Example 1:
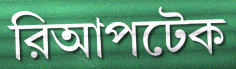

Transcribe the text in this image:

রিআপটেক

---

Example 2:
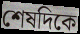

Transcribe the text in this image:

শেষদিকে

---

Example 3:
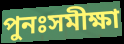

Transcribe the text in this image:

পুনঃসমীক্ষা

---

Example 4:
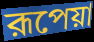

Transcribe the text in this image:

রূপেয়া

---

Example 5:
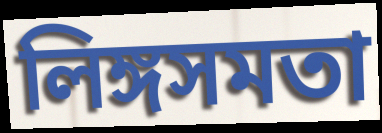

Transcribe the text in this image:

লিঙ্গসমতা